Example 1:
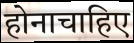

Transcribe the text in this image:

होनाचाहिए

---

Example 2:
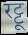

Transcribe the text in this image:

रट्टू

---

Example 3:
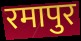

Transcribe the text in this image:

रमापुर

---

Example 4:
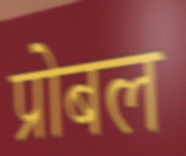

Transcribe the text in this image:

प्रोबल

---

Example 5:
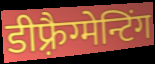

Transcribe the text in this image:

डीफ़्रैग्मेन्टिंग